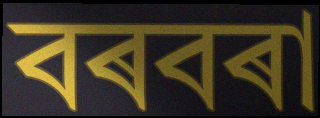
বৰবৰা